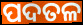
ପଦତଳ